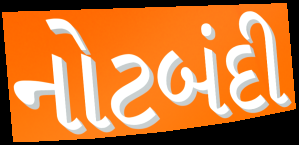
નોટબંદી